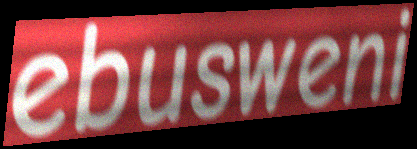
ebusweni